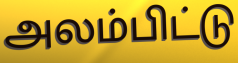
அலம்பிட்டு